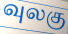
வுலகு